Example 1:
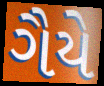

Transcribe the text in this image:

ગૈયે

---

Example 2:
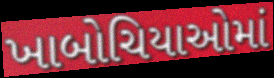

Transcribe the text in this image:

ખાબોચિયાઓમાં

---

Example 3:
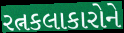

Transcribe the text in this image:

રત્નકલાકારોને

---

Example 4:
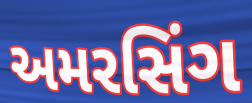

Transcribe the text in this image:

અમરસિંગ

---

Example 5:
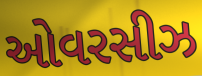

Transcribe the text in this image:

ઓવરસીઝ